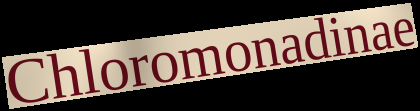
Chloromonadinae